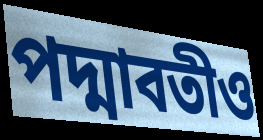
পদ্মাবতীও